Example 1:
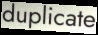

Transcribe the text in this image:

duplicate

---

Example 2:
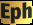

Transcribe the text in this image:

Eph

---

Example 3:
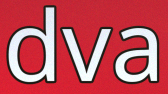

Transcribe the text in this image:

dva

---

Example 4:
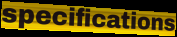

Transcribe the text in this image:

specifications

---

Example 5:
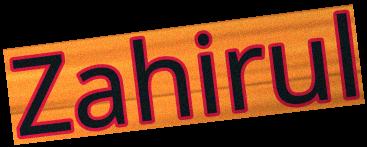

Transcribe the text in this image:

Zahirul